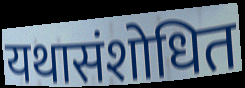
यथासंशोधित